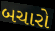
બચારો